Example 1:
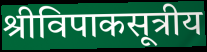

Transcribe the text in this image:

श्रीविपाकसूत्रीय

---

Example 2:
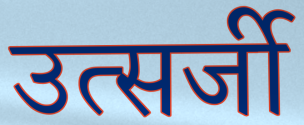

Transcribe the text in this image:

उत्सर्जी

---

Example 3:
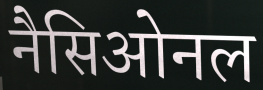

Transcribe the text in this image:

नैसिओनल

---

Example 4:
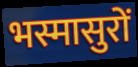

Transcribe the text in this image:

भस्मासुरों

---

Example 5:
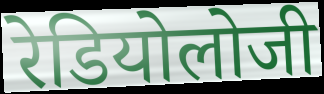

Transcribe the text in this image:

रेडियोलोजी